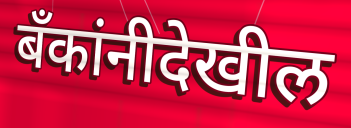
बँकांनीदेखील